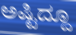
ಅಷ್ಟಿದ್ದೂ